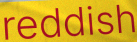
reddish